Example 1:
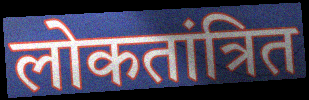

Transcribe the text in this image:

लोकतांत्रित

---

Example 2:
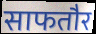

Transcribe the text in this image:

साफतौर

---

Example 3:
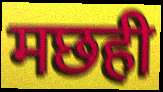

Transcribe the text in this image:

मछही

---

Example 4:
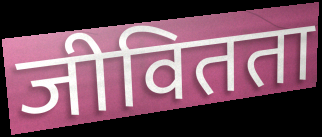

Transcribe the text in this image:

जीवितता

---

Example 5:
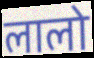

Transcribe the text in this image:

लालो